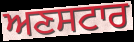
ਅਣਸਟਾਰ